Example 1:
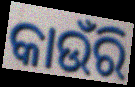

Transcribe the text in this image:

କାଉଁରି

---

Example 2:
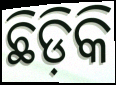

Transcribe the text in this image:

ଛିଡ଼ିକି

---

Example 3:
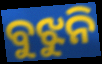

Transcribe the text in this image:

ବୁଝୁନି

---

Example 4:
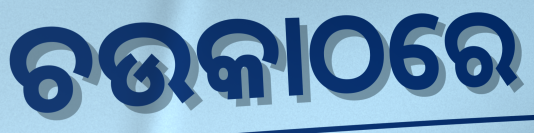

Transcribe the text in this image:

ଚଉକାଠରେ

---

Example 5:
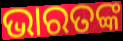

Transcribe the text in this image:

ଭାରତଙ୍କ